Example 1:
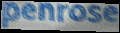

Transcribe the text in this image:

penrose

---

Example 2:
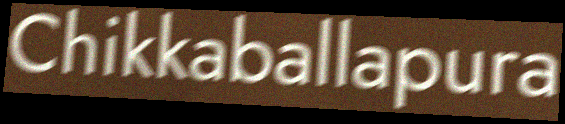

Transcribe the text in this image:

Chikkaballapura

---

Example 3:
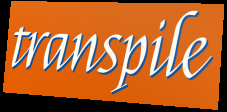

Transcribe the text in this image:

transpile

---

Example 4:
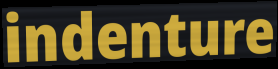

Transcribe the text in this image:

indenture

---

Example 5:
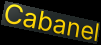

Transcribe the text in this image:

Cabanel